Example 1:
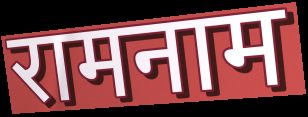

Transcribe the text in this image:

रामनाम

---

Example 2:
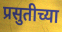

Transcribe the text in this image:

प्रसुतीच्या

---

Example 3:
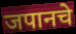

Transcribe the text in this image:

जपानचे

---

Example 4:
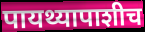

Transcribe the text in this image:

पायथ्यापाशीच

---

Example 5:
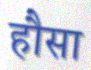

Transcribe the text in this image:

हौसा